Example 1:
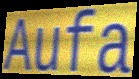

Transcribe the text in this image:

Aufa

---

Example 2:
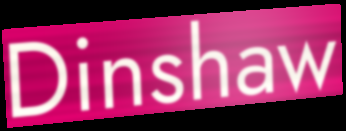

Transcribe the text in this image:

Dinshaw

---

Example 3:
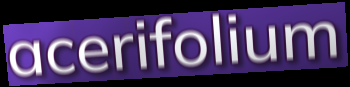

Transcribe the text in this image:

acerifolium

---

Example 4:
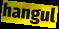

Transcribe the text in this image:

hangul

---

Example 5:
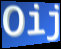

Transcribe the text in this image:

Oij